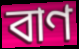
বাণ